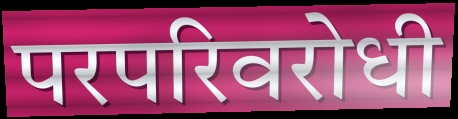
परपरिवरोधी